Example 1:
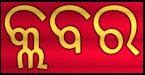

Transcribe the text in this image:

କ୍ଲବର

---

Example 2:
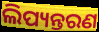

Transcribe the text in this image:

ଲିପ୍ୟନ୍ତରଣ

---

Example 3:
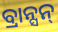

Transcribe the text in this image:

ବ୍ରାନ୍ସନ୍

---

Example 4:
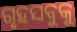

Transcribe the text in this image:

ଗୃହସବୁକୁ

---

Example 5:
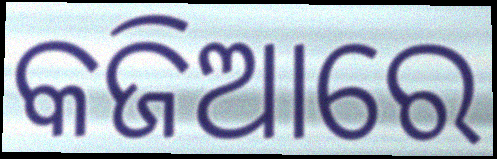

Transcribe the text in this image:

କଜିଆରେ